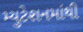
મ્યુટેશનમાંથી